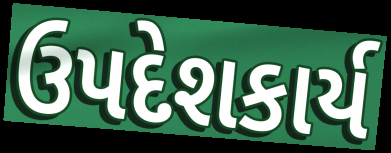
ઉપદેશકાર્ય